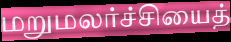
மறுமலர்ச்சியைத்